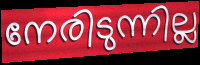
നേരിടുന്നില്ല